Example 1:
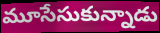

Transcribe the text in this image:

మూసేసుకున్నాడు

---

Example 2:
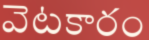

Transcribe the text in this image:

వెటకారం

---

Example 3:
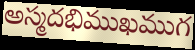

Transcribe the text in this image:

అస్మదభిముఖముగ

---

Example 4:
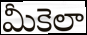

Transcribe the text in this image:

మీకెలా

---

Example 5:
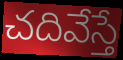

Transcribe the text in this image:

చదివేస్తే